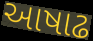
આષાઢ